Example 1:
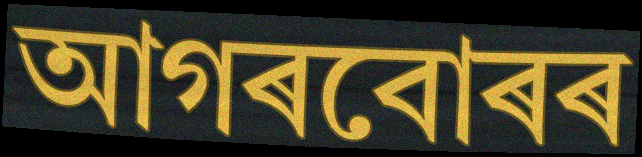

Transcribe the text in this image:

আগৰবোৰৰ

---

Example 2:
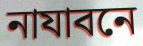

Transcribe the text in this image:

নাযাবনে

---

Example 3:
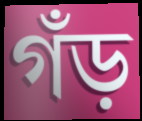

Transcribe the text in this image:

গঁড়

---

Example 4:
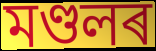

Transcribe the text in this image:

মণ্ডলৰ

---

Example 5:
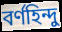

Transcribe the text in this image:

বৰ্ণহিন্দু